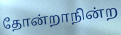
தோன்றாநின்ற